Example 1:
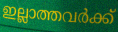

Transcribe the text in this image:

ഇല്ലാത്തവർക്ക്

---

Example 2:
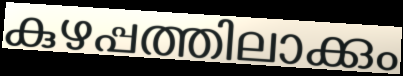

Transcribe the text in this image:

കുഴപ്പത്തിലാക്കും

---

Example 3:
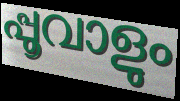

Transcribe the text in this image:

പ്പൂവാളും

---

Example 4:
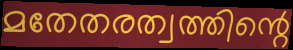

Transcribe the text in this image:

മതേതരത്വത്തിന്റെ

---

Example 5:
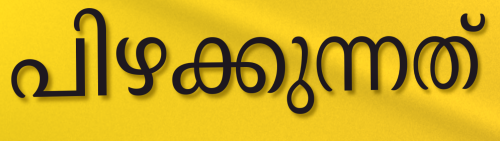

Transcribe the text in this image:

പിഴക്കുന്നത്